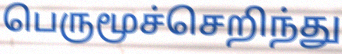
பெருமூச்செறிந்து